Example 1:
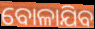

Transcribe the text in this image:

ବୋଳାଯିବ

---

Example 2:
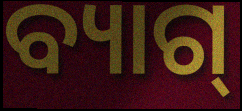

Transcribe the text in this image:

ବ୍ୟାଗ୍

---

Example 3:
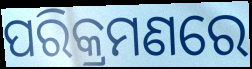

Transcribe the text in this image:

ପରିକ୍ରମଣରେ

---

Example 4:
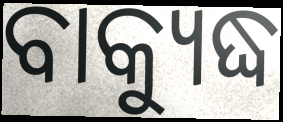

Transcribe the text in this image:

ବାକ୍ଯୁଦ୍ଧ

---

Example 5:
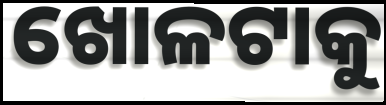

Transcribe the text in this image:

ଖୋଳଟାକୁ